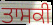
ਤਾਸਕੀ